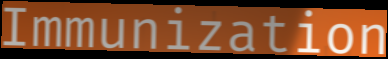
Immunization